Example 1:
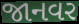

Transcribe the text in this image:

જાનવર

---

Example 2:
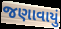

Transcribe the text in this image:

જણાવાયું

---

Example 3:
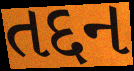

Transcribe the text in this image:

તદ્દન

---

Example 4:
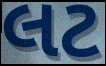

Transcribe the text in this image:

લટ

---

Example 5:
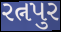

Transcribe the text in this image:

રત્નપુર